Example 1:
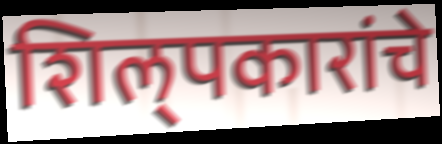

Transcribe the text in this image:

शिल्पकारांचे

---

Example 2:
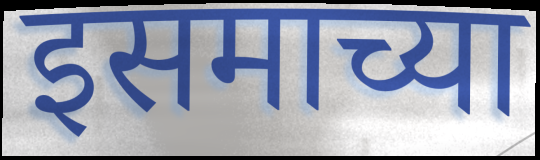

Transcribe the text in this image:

इसमाच्या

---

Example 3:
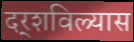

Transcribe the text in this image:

दर्शविल्यास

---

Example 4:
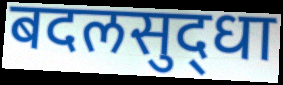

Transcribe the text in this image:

बदलसुद्धा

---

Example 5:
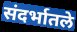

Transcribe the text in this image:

संदर्भातले